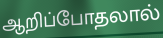
ஆறிப்போதலால்